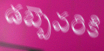
డబ్బెవరికి